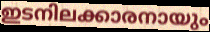
ഇടനിലക്കാരനായും